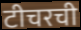
टीचरची